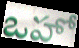
ఒహో